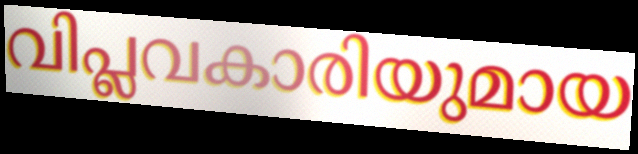
വിപ്ലവകാരിയുമായ